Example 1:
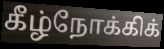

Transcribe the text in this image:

கீழ்நோக்கிக்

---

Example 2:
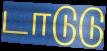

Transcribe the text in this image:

டாடுடு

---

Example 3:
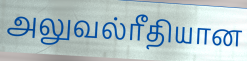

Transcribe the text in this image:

அலுவல்ரீதியான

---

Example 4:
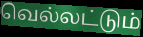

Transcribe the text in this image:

வெல்லட்டும்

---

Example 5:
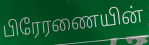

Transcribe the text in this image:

பிரேரணையின்